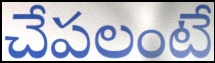
చేపలంటే